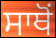
ਸਾਥੋਂ